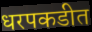
धरपकडीत